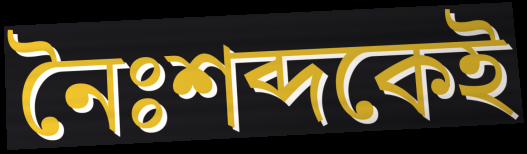
নৈঃশব্দকেই